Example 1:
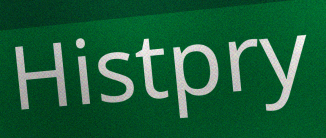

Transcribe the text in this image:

Histpry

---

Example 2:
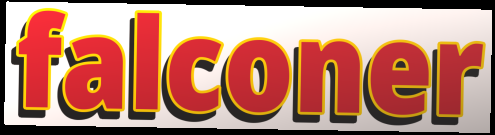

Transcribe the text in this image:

falconer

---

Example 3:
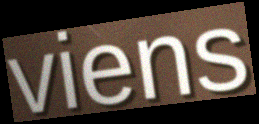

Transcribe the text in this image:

viens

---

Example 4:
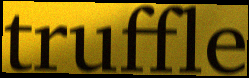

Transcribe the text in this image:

truffle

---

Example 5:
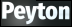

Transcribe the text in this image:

Peyton